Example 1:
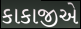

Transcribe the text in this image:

કાકાજીએ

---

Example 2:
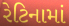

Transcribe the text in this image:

રેટિનામાં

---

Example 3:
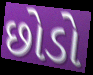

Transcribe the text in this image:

છોડો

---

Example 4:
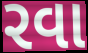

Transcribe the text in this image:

રવા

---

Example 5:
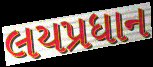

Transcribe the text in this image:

લયપ્રધાન